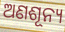
ଅଣଶୂନ୍ୟ